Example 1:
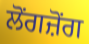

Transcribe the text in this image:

ਲੋਂਗਜ਼ੋਂਗ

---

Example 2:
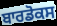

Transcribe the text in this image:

ਬਾਰਡੋਕਸ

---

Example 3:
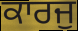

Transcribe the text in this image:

ਕਾਰਜੁ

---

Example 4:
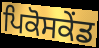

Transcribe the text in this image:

ਪਿਕੋਸਕੇਂਡ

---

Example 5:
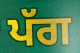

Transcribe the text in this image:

ਪੱਗ